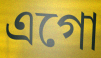
এগো